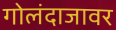
गोलंदाजावर